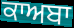
ਕਾਅਬਾ